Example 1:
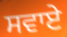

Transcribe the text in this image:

ਸਵਾਏ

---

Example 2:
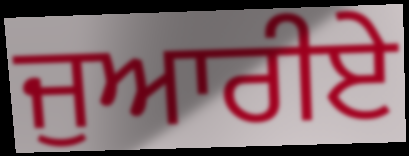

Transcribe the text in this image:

ਜੁਆਰੀਏ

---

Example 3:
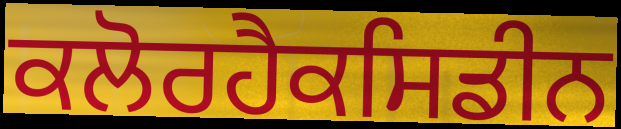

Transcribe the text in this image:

ਕਲੋਰਹੈਕਸਿਡੀਨ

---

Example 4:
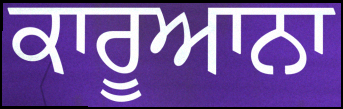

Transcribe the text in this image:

ਕਾਰੂਆਨਾ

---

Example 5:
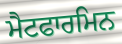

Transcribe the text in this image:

ਮੈਟਫਾਰਮਿਨ